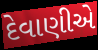
દેવાણીએ